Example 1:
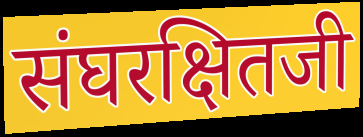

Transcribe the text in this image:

संघरक्षितजी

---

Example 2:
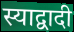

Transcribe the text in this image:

स्याद्वादी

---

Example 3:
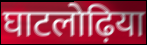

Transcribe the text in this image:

घाटलोढ़िया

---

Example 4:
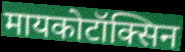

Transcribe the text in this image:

मायकोटॉक्सिन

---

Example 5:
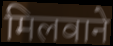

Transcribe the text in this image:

मिलवाने